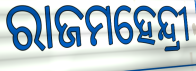
ରାଜମହେନ୍ଦ୍ରୀ